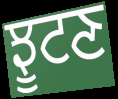
ਝੂਟਣ